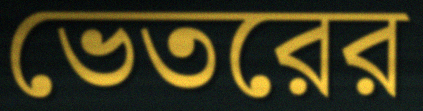
ভেতরের